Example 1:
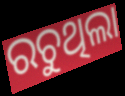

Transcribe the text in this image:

ରଚୁଥିଲା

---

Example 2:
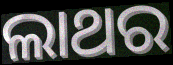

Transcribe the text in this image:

ଲାଥର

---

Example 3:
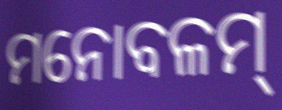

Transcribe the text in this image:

ମନୋବଳମ୍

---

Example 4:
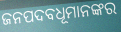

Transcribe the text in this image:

ଜନପଦବଧୂମାନଙ୍କର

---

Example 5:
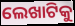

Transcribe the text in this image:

ଲେଖାଟିକୁ